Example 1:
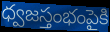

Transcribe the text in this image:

ధ్వజస్తంభంపైకి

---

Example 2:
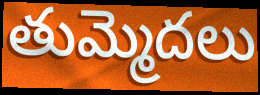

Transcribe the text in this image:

తుమ్మెదలు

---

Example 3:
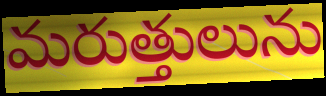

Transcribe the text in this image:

మరుత్తులును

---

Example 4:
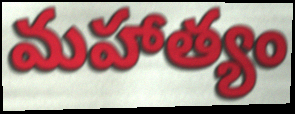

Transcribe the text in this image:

మహాత్యం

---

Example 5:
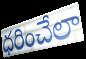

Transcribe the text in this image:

ధరించేలా